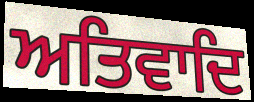
ਅਤਿਵਾਦਿ